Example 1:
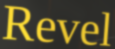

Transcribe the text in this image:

Revel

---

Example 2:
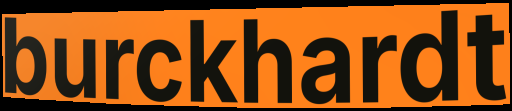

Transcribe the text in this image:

burckhardt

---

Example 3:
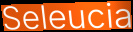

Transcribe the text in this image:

Seleucia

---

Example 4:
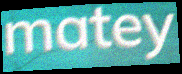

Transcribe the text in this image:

matey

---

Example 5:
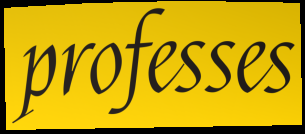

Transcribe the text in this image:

professes